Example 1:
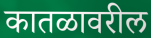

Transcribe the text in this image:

कातळावरील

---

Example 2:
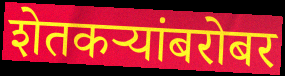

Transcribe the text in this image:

शेतकर्‍यांबरोबर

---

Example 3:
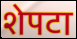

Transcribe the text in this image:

शेपटा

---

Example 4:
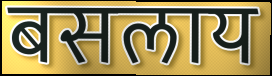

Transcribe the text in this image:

बसलाय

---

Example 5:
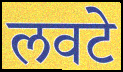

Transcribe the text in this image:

लवटे